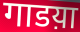
गाडय़ा